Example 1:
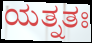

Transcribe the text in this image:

ಯತ್ನತಃ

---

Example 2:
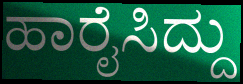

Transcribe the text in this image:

ಹಾರೈಸಿದ್ದು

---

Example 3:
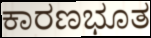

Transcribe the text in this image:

ಕಾರಣಭೂತ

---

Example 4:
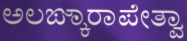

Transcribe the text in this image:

ಅಲಙ್ಕಾರಾಪೇತ್ವಾ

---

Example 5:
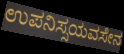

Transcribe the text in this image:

ಉಪನಿಸ್ಸಯವಸೇನ